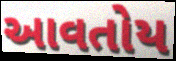
આવતોય